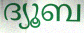
ദ്യൂബ